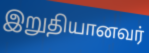
இறுதியானவர்